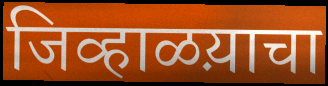
जिव्हाळय़ाचा